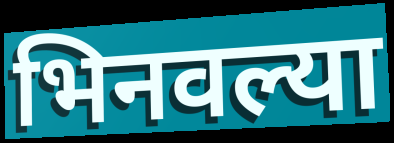
भिनवल्या